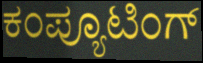
ಕಂಪ್ಯೂಟಿಂಗ್